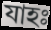
যাহঃ